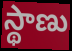
స్థాణు